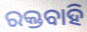
ରକ୍ତବାହି